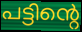
പട്ടിന്റെ